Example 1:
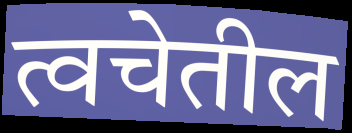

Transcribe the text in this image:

त्वचेतील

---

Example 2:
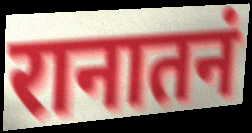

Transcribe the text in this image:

रानातनं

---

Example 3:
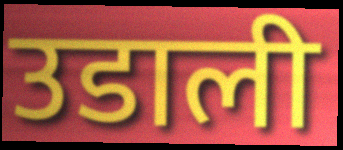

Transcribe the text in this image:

उडाली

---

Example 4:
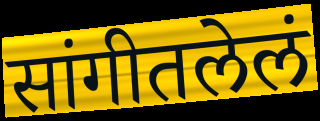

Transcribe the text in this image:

सांगीतलेलं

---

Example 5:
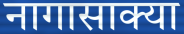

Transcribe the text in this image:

नागासाक्या